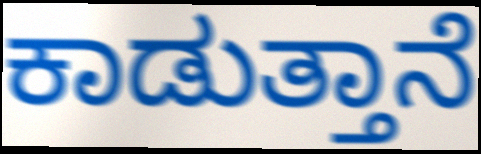
ಕಾಡುತ್ತಾನೆ